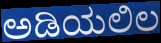
ಅಡಿಯಲಿಲ